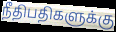
நீதிபதிகளுக்கு